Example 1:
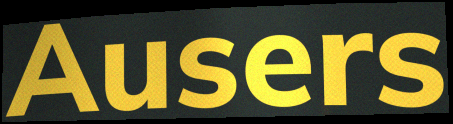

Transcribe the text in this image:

Ausers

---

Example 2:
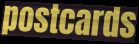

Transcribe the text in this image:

postcards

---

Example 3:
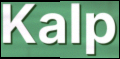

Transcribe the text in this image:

Kalp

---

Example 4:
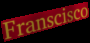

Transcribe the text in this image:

Franscisco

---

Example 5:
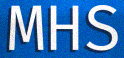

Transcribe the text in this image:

MHS